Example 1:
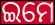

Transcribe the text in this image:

ଇମେ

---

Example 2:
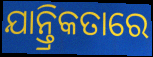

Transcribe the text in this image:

ଯାନ୍ତ୍ରିକତାରେ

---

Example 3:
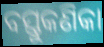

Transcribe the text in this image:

ବସ୍ତୁକଣିକା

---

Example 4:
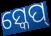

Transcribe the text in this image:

ସ୍କେପ୍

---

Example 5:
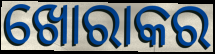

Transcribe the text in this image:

ଖୋରାକର